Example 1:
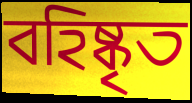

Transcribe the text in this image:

বহিষ্কৃত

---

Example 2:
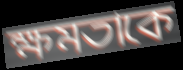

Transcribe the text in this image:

ক্ষমতাকে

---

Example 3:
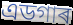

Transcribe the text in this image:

এডগাৰ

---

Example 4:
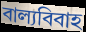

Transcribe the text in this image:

বাল্যবিবাহ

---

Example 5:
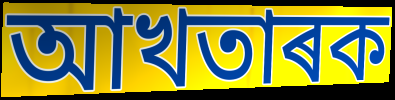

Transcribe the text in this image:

আখতাৰক